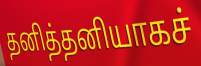
தனித்தனியாகச்